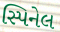
સ્પિનેલ